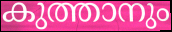
കുത്താനും